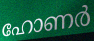
ഹോണർ